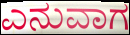
ಎನುವಾಗ